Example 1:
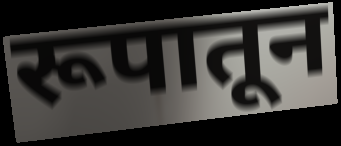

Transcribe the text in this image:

रूपातून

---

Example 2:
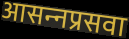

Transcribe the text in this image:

आसन्नप्रसवा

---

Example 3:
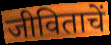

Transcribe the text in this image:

जीविताचें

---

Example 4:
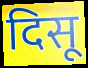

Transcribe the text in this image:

दिसू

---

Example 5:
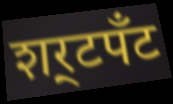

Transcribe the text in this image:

शर्टपॅंट